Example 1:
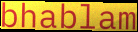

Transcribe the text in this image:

bhablam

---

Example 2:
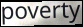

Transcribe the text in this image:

poverty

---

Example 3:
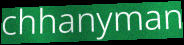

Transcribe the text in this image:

chhanyman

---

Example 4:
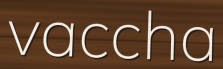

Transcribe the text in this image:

vaccha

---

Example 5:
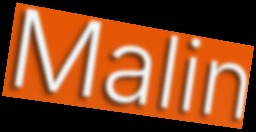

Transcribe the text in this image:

Malin